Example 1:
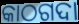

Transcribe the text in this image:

କାଠଗଦା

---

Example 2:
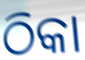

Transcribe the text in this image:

ଠିକା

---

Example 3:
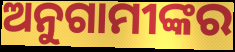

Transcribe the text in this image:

ଅନୁଗାମୀଙ୍କର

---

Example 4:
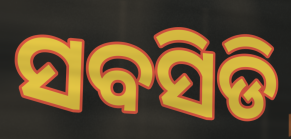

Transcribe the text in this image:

ସବସିଡି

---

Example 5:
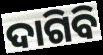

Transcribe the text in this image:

ଦାଗିବି